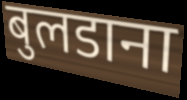
बुलडाना